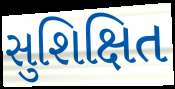
સુશિક્ષિત